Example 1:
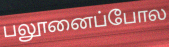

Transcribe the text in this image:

பலூனைப்போல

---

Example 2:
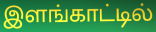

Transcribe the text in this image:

இளங்காட்டில்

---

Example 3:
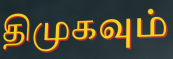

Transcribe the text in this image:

திமுகவும்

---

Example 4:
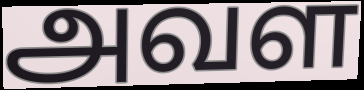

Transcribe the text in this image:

அவள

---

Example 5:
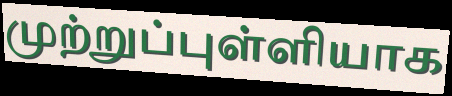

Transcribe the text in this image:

முற்றுப்புள்ளியாக